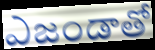
ఎజండాతో